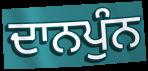
ਦਾਨਪੁੰਨ